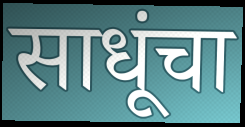
साधूंचा